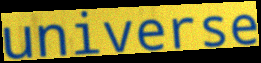
universe